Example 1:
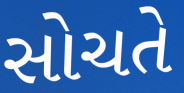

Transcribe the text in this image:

સોચતે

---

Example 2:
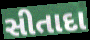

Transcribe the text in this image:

સીતાદા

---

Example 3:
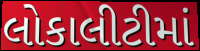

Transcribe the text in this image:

લોકાલીટીમાં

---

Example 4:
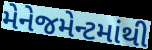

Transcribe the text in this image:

મેનેજમેન્ટમાંથી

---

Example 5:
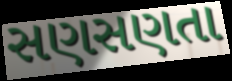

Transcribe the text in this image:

સણસણતા